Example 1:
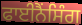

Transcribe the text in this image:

ਫਾਈਨੈਂਸਿੰਗ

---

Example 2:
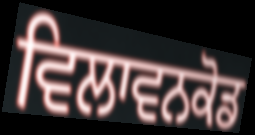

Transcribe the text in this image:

ਵਿਲਾਵਨਕੋਡ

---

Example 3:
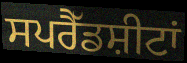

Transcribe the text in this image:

ਸਪਰੈੱਡਸ਼ੀਟਾਂ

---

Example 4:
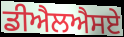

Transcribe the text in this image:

ਡੀਐਲਐਸਏ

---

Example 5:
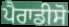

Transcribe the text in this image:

ਪੈਰਾਡੀਸੋ